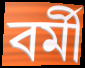
বর্মী